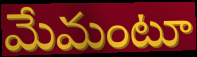
మేమంటూ